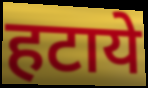
हटाये